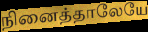
நினைத்தாலேயே